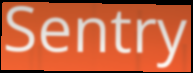
Sentry